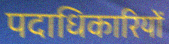
पदाधिकारियों